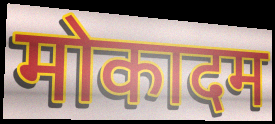
मोकादम